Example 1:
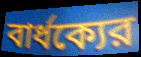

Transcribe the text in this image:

বার্ধক্যের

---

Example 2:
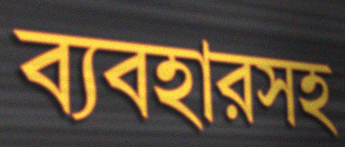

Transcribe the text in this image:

ব্যবহারসহ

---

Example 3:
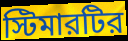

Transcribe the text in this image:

স্টিমারটির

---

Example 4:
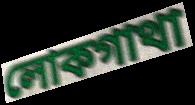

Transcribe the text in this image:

লোকগাথা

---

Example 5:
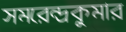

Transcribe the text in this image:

সমরেন্দ্রকুমার